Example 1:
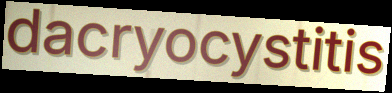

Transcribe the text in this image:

dacryocystitis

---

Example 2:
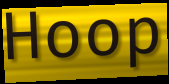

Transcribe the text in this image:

Hoop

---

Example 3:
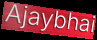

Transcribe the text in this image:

Ajaybhai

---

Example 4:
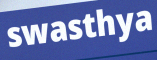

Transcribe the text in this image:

swasthya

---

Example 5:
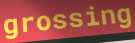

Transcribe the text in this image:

grossing